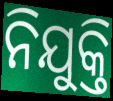
ନିଯୁକ୍ତି